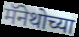
मॅनेथोच्या